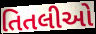
તિતલીઓ